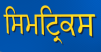
ਸਿਮਟ੍ਰਿਕਸ